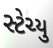
સ્ટેચ્યુ